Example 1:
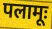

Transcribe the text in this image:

पलामूः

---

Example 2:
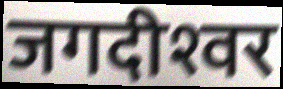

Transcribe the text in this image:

जगदीश्वर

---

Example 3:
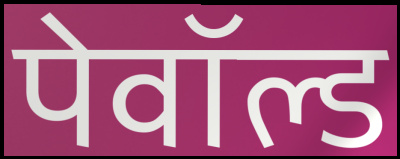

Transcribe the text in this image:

पेवॉल्ड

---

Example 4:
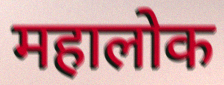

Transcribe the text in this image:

महालोक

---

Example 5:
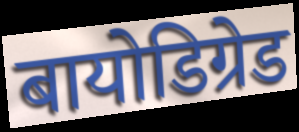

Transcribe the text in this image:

बायोडिग्रेड